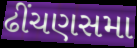
ઢીંચણસમા